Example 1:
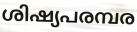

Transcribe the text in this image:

ശിഷ്യപരമ്പര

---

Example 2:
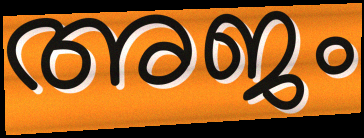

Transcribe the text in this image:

അജം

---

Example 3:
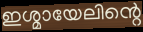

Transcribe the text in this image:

ഇശ്മായേലിന്റെ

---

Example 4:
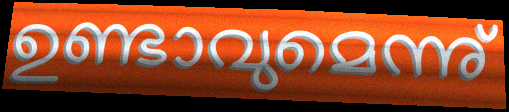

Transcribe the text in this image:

ഉണ്ടാവുമെന്നു്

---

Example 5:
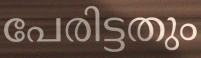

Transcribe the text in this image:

പേരിട്ടതും